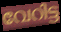
വേറിട്ട